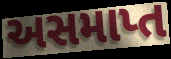
અસમાપ્ત